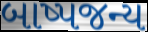
બાષ્પજન્ય